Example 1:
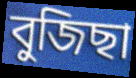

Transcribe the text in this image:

বুজিছা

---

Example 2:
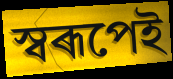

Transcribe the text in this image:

স্বৰূপেই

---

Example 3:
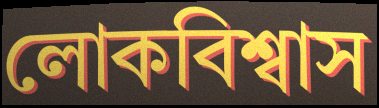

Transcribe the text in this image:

লোকবিশ্বাস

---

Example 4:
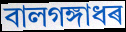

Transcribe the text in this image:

বালগঙ্গাধৰ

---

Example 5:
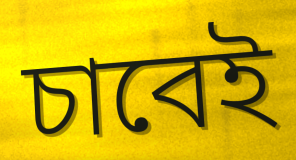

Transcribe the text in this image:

চাবেই